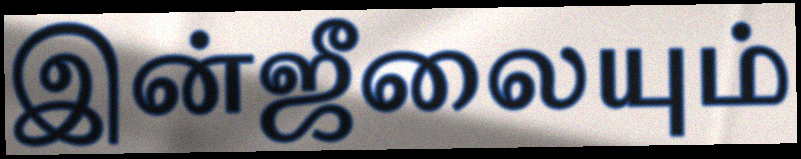
இன்ஜீலையும்